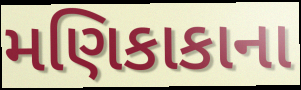
મણિકાકાના